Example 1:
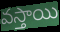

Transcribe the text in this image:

వస్తాయి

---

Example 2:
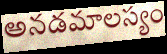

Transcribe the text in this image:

అనడమాలస్యం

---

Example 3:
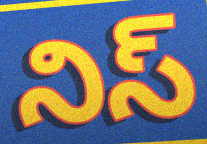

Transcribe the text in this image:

నిస్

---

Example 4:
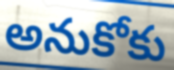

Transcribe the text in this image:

అనుకోకు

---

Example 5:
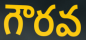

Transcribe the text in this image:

గౌరవ